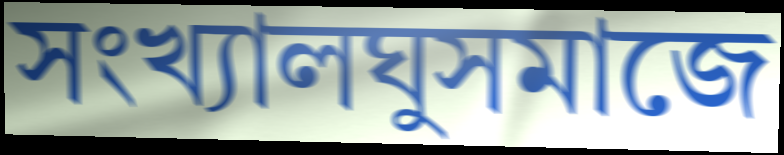
সংখ্যালঘুসমাজে